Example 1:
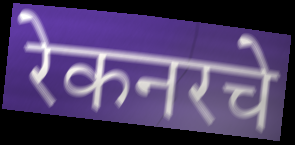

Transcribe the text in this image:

रेकनरचे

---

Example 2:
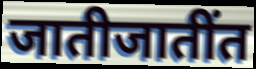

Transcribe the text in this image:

जातीजातींत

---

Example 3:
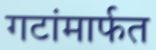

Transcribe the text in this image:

गटांमार्फत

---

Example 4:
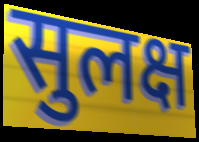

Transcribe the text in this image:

सुलक्ष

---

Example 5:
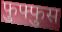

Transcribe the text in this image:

फुफ्फुस